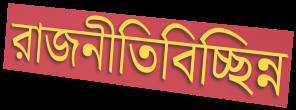
রাজনীতিবিচ্ছিন্ন